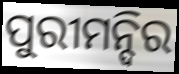
ପୁରୀମନ୍ଦିର